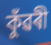
কুঁৱৰী